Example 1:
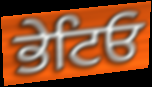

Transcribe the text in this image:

ਭੇਟਿਓ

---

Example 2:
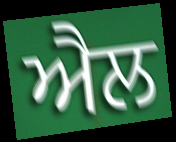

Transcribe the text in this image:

ਐਲ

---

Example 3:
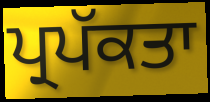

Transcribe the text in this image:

ਪ੍ਰਪੱਕਤਾ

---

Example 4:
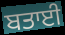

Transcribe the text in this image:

ਬਤਾਈ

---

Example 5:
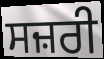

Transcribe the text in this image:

ਸਜ਼ਰੀ